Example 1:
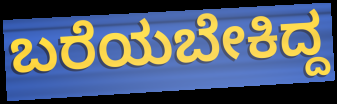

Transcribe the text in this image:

ಬರೆಯಬೇಕಿದ್ದ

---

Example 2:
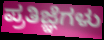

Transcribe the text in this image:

ಪ್ರತಿಜ್ಞೆಗಳು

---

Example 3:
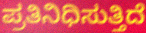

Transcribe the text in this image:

ಪ್ರತಿನಿಧಿಸುತ್ತಿದೆ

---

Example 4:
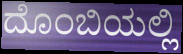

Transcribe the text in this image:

ದೊಂಬಿಯಲ್ಲಿ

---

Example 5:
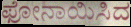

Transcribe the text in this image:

ಫೋನಾಯಿಸಿದ